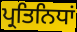
ਪ੍ਰਤਿਨਿਧਾਂ